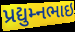
પ્રદ્યુમ્નભાઇ